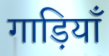
गाड़ियाँ